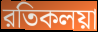
রতিকলয়া